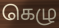
கெழு